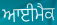
ਆਈਮੈਕ